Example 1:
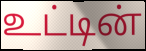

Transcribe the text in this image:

உட்டின்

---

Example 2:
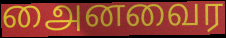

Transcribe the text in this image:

அைனவைர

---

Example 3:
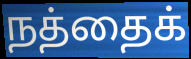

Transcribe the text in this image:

நத்தைக்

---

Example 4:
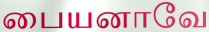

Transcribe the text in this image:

பையனாவே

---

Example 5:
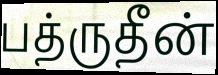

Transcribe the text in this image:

பத்ருதீன்